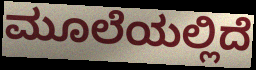
ಮೂಲೆಯಲ್ಲಿದೆ